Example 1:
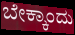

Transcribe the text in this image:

ಬೇಕ್ಕಾಂದು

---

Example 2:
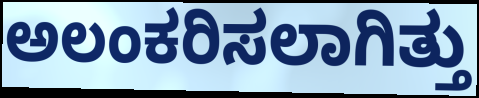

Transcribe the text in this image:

ಅಲಂಕರಿಸಲಾಗಿತ್ತು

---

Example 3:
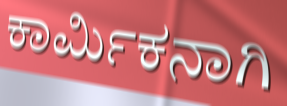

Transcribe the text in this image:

ಕಾರ್ಮಿಕನಾಗಿ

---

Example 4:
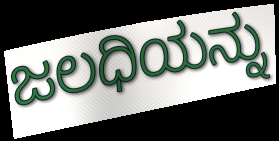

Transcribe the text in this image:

ಜಲಧಿಯನ್ನು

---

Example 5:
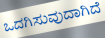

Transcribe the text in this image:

ಒದಗಿಸುವುದಾಗಿದೆ